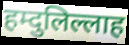
हम्दुलिल्लाह